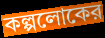
কল্পলোকের